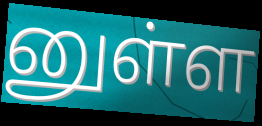
னுள்ள